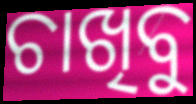
ଚାଖିବୁ